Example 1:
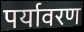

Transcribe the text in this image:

पर्यावरण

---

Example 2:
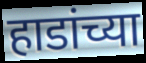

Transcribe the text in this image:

हाडांच्या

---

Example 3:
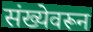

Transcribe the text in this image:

संख्येवरून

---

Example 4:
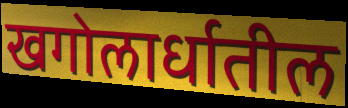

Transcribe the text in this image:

खगोलार्धातील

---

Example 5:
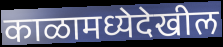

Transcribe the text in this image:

काळामध्येदेखील